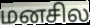
மனசில